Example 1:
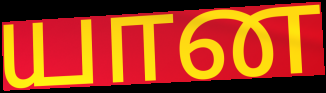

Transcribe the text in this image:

யான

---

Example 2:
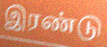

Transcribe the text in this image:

இரண்டு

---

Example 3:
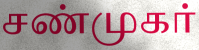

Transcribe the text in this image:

சண்முகர்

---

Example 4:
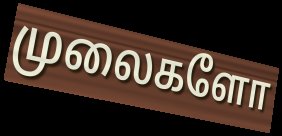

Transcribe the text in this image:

முலைகளோ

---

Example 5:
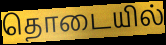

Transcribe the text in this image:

தொடையில்